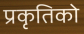
प्रकृतिको